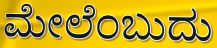
ಮೇಲೆಂಬುದು